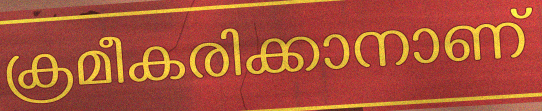
ക്രമീകരിക്കാനാണ്